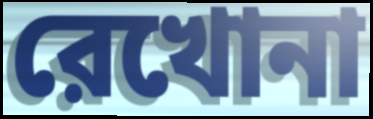
রেখোনা